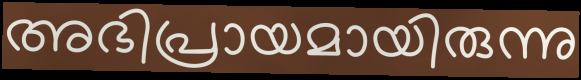
അഭിപ്രായമായിരുന്നു